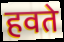
हवते